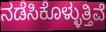
ನಡೆಸಿಕೊಳ್ಳುತ್ತಿವೆ